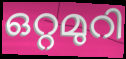
ഒറ്റമുറി